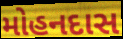
મોહનદાસ